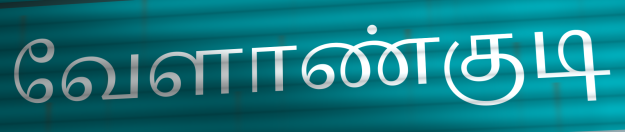
வேளாண்குடி